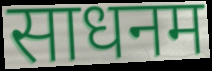
साधनम